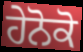
ਹੇਨੋਕੋ